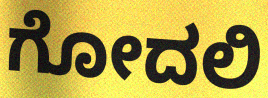
ಗೋದಲಿ